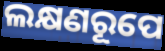
ଲକ୍ଷଣରୂପେ